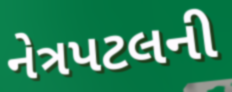
નેત્રપટલની